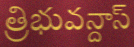
త్రిభువన్దాస్